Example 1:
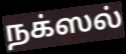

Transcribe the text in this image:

நக்ஸல்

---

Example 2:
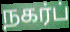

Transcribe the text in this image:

நகர்ப்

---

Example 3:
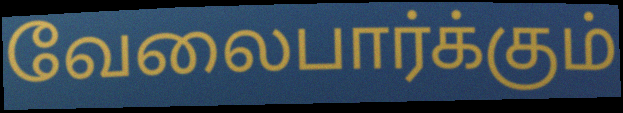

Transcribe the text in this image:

வேலைபார்க்கும்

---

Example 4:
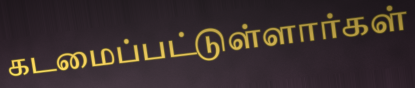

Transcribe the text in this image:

கடமைப்பட்டுள்ளார்கள்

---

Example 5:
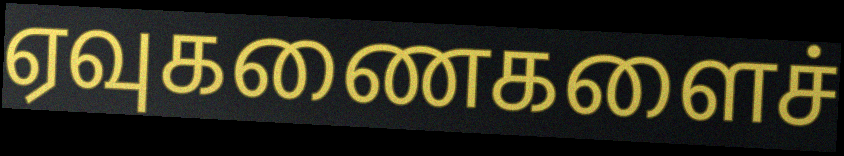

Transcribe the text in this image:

ஏவுகணைகளைச்